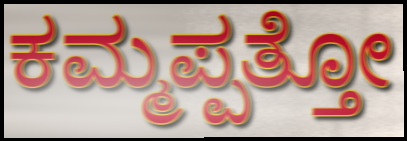
ಕಮ್ಮಪ್ಪತ್ತೋ